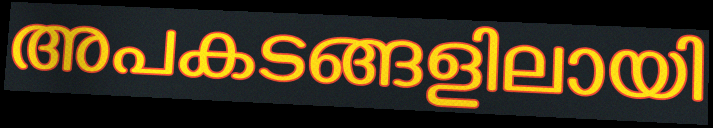
അപകടങ്ങളിലായി